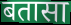
बतासा